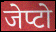
जेप्टो